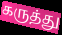
கருத்து